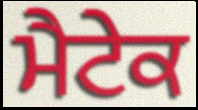
ਮੈਟੇਕ